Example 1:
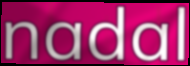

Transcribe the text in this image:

nadal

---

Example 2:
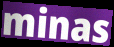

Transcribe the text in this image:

minas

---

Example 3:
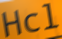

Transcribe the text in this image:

Hcl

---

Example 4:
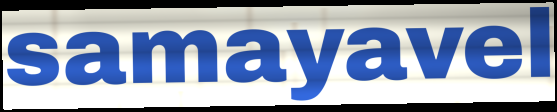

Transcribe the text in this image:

samayavel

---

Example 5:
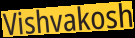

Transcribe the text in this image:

Vishvakosh